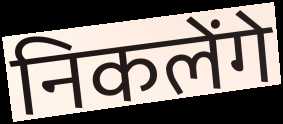
निकलेंगे